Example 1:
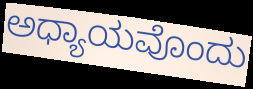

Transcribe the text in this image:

ಅಧ್ಯಾಯವೊಂದು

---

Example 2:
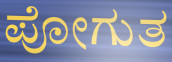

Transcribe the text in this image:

ಪೋಗುತ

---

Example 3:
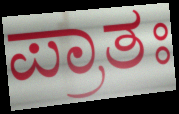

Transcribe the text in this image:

ಪ್ರಾತಃ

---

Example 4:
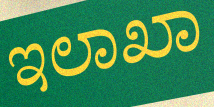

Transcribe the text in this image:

ಇಲಾಖಾ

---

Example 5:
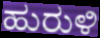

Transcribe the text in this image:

ಹುರುಳಿ